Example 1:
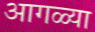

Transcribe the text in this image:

आगळ्या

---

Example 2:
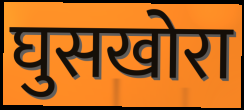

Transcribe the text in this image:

घुसखोरा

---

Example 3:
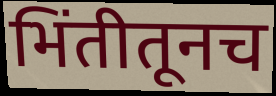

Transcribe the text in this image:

भिंतीतूनच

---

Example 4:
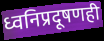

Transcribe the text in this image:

ध्वनिप्रदूषणही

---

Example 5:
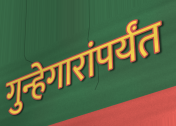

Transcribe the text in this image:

गुन्हेगारांपर्यंत